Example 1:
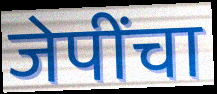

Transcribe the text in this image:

जेपींचा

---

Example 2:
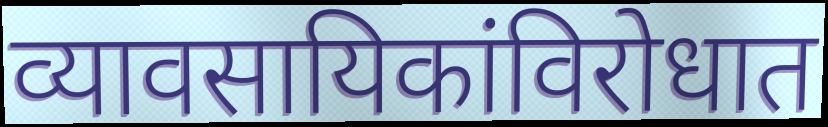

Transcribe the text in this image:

व्यावसायिकांविरोधात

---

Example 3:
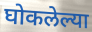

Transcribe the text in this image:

घोकलेल्या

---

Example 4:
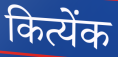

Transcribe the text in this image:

कित्येंक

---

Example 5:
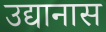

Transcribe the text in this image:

उद्यानास